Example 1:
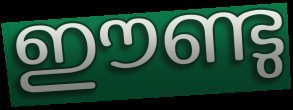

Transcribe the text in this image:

ഈണ്ടു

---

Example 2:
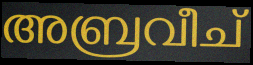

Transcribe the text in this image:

അബ്രവീച്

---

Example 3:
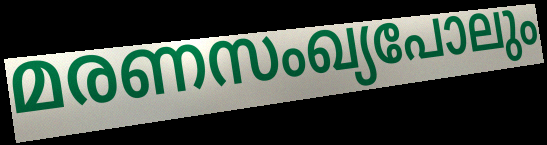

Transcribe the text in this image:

മരണസംഖ്യപോലും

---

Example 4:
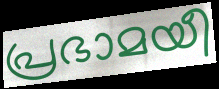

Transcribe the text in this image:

പ്രഭാമയീ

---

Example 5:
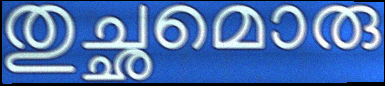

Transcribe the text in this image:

തുച്ഛമൊരു